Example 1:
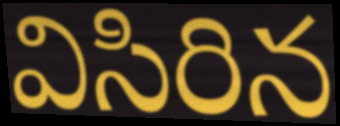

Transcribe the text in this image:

విసిరిన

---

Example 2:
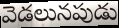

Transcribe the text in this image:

వెడలునపుడు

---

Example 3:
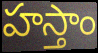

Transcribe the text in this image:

హస్తాం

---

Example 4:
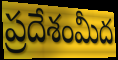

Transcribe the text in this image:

ప్రదేశంమీద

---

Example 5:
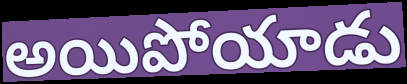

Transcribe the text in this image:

అయిపోయాడు